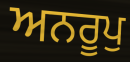
ਅਨਰੂਪੁ